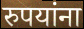
रुपयांना